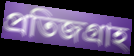
প্রতিজগ্রাহ